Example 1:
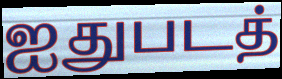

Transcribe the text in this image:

ஐதுபடத்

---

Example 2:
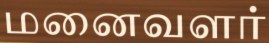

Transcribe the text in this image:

மனைவளர்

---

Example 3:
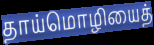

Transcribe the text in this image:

தாய்மொழியைத்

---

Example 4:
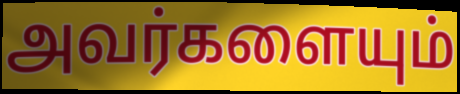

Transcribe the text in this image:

அவர்களையும்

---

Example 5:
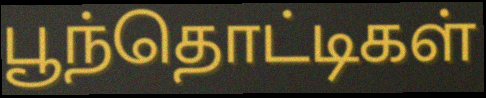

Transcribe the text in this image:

பூந்தொட்டிகள்